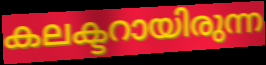
കലക്ടറായിരുന്ന